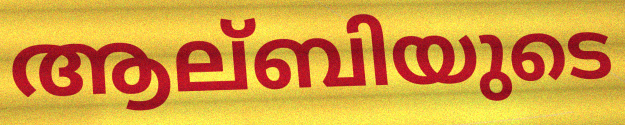
ആല്ബിയുടെ